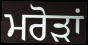
ਮਰੋੜਾਂ